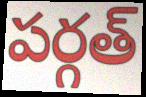
పర్గత్